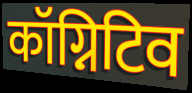
कॉग्निटिव